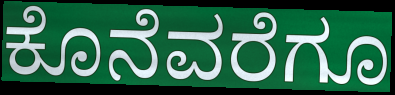
ಕೊನೆವರೆಗೂ